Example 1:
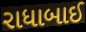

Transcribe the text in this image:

રાધાબાઈ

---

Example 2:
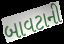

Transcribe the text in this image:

બાવટાની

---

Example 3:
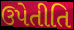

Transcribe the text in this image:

ઉપેતીતિ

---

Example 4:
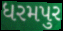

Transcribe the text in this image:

ધરમપુર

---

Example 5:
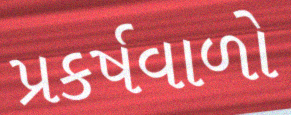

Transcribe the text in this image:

પ્રકર્ષવાળો